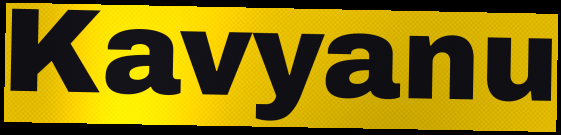
Kavyanu